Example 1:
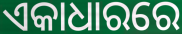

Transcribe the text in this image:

ଏକାଧାରରେ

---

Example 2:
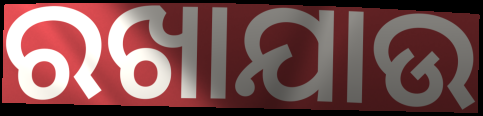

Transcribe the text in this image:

ରଖାଯାଉ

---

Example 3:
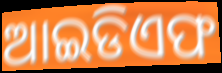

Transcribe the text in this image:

ଆଇଡିଏଫ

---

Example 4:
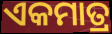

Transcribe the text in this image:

ଏକମାତ୍ର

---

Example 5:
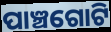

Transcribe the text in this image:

ପାଞ୍ଚଗୋଟି